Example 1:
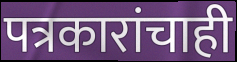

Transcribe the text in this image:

पत्रकारांचाही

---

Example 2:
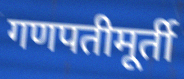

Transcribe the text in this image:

गणपतीमूर्ती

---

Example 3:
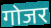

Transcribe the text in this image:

गोजर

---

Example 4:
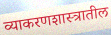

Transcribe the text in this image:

व्याकरणशास्त्रातील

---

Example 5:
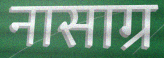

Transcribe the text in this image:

नासाग्र